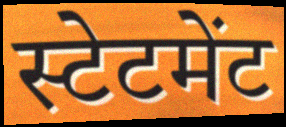
स्टेटमेंट